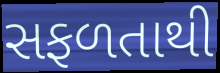
સફળતાથી